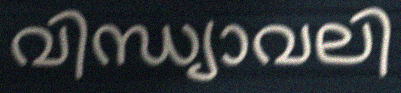
വിന്ധ്യാവലി